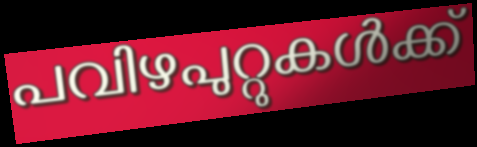
പവിഴപുറ്റുകൾക്ക്